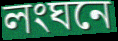
লংঘনে